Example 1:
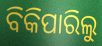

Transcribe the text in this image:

ବିକିପାରିଲୁ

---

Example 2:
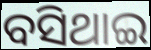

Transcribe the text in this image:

ବସିଥାଇ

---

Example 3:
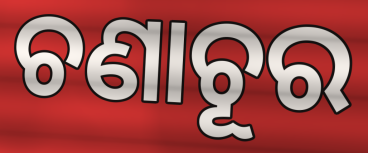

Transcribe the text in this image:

ଚଣାଚୂର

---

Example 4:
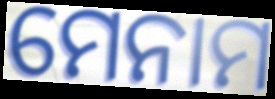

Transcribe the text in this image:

ମେନାମ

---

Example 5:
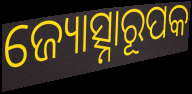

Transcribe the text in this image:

ଜ୍ୟୋତ୍ସ୍ନାରୂପକ